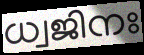
ധ്വജിനഃ